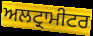
ਅਲਟ੍ਰਾਮੀਟਰ